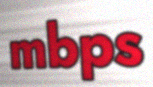
mbps